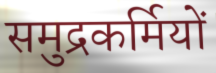
समुद्रकर्मियों